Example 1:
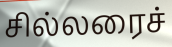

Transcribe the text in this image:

சில்லரைச்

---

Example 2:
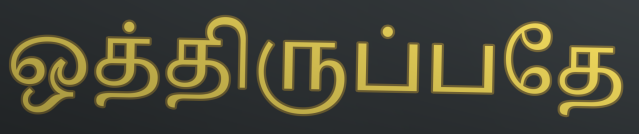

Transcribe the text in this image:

ஒத்திருப்பதே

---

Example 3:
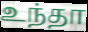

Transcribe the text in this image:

உந்தா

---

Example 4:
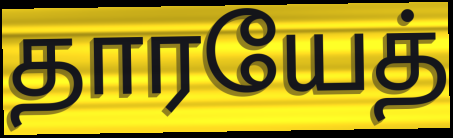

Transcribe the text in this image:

தாரயேத்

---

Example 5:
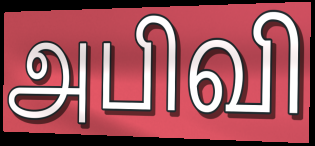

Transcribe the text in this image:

அபிவி